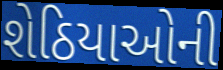
શેઠિયાઓની